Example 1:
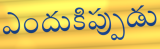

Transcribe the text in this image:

ఎందుకిప్పుడు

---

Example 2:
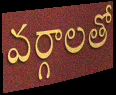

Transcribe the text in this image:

వర్గాలతో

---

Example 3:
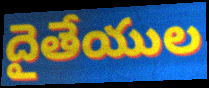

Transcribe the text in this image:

దైతేయుల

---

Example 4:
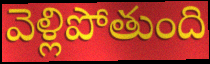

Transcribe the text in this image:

వెళ్లిపోతుంది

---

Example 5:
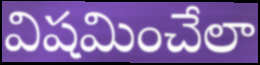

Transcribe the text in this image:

విషమించేలా